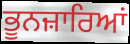
ਭੂਨਜ਼ਾਰਿਆਂ